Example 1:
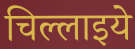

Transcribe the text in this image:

चिल्लाइये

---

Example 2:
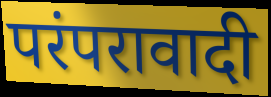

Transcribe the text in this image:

परंपरावादी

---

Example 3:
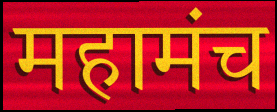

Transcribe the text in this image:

महामंच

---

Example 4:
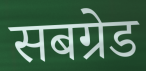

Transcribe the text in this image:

सबग्रेड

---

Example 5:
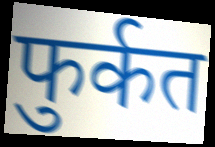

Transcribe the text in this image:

फुर्कत